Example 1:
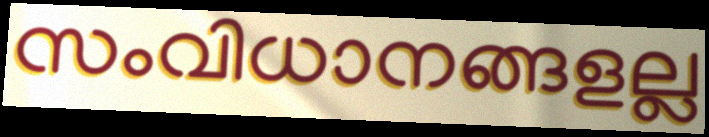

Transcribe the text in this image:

സംവിധാനങ്ങളല്ല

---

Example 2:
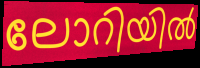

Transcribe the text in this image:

ലോറിയിൽ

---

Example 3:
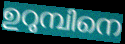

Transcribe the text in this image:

ഉറുമ്പിനെ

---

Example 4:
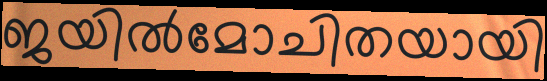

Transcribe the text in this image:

ജയിൽമോചിതയായി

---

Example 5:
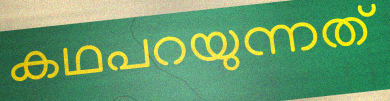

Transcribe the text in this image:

കഥപറയുന്നത്